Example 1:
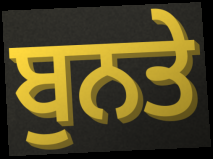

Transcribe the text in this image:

ਬੁਨਤੇ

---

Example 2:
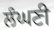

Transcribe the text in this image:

ਲੰਘਣੀ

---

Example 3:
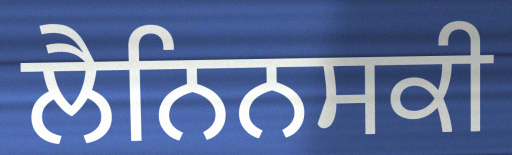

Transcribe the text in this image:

ਲੈਨਿਨਸਕੀ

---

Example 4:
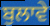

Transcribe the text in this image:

ਬੁਲਾਵੇ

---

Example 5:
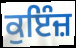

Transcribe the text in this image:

ਕੁਇੰਜ਼